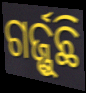
ଗର୍ଜ୍ଜୁଛି